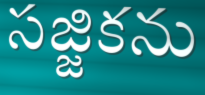
సజ్జికను